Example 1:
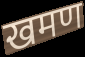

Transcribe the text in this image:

खमण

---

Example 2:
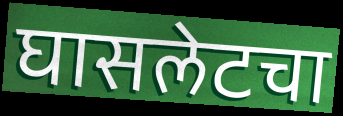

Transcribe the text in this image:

घासलेटचा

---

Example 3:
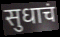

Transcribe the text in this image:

सुधाचं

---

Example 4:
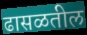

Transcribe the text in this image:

ढासळतील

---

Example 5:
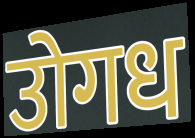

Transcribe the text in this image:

उोगध